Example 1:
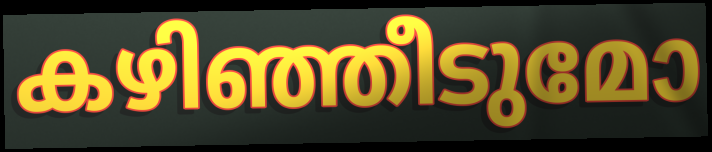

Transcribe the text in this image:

കഴിഞ്ഞീടുമോ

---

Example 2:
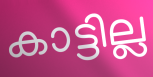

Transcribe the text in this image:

കാട്ടില്ല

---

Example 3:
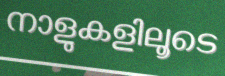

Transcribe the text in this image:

നാളുകളിലൂടെ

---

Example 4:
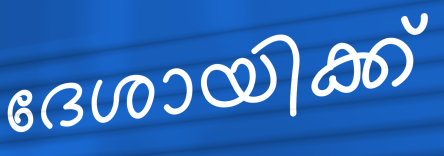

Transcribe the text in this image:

ദേശായിക്ക്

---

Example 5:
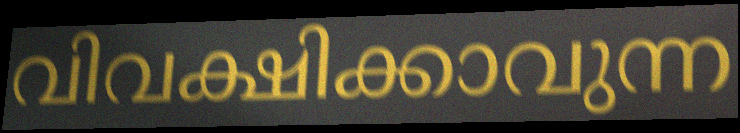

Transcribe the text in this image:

വിവക്ഷിക്കാവുന്ന